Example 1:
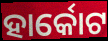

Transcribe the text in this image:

ହାର୍କୋଟ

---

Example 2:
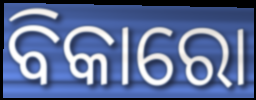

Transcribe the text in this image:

ବିକାରୋ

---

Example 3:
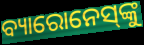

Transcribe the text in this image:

ବ୍ୟାରୋନେସ୍‌ଙ୍କୁ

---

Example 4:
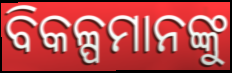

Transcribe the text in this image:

ବିକଳ୍ପମାନଙ୍କୁ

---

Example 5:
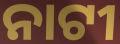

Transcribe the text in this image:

ନାଟୀ